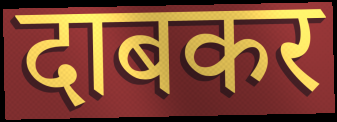
दाबकर